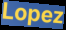
Lopez